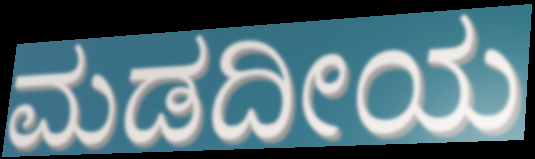
ಮಡದೀಯ